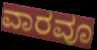
ವಾರವೂ